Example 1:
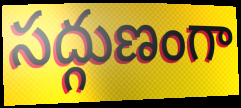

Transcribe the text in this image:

సద్గుణంగా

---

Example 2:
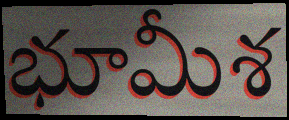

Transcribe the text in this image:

భూమీశ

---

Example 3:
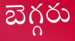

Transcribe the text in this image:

బెగ్గరు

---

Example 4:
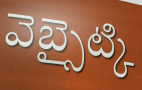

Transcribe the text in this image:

వెబ్సైట్కి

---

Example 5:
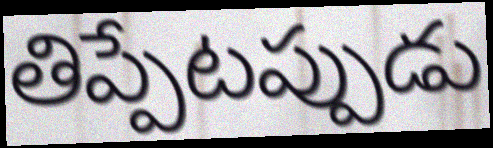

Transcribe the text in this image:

తిప్పేటప్పుడు